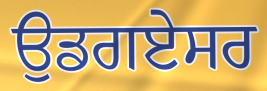
ਉਡਗਏਸਰ